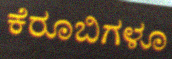
ಕೆರೂಬಿಗಳೂ